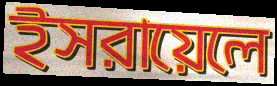
ইসরায়েলে